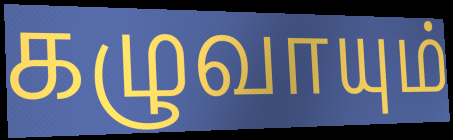
கழுவாயும்